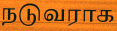
நடுவராக